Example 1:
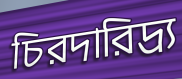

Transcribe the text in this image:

চিরদারিদ্র্য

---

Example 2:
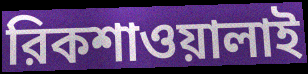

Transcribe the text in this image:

রিকশাওয়ালাই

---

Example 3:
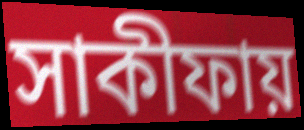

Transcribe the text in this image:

সাকীফায়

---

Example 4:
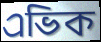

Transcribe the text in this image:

এভিক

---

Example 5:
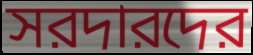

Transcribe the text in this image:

সরদারদের